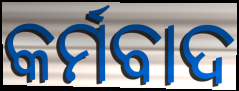
କର୍ମବାଦ